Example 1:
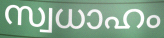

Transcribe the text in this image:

സ്വധാഹം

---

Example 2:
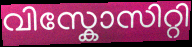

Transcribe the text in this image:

വിസ്കോസിറ്റി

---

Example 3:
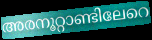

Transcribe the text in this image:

അരനൂറ്റാണ്ടിലേറെ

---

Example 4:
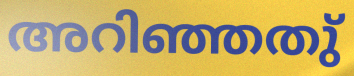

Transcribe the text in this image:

അറിഞ്ഞതു്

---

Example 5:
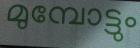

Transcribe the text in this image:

മുമ്പോട്ടും